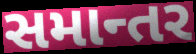
સમાન્તર